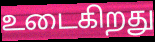
உடைகிறது